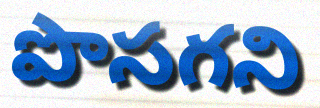
పొసగని